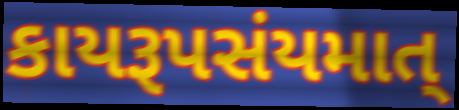
કાયરૂપસંયમાત્